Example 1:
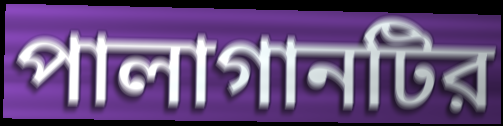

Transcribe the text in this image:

পালাগানটির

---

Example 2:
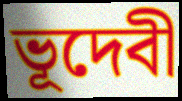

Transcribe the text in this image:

ভূদেবী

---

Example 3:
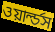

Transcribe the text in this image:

ওয়ার্ল্ডস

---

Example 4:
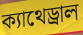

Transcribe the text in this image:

ক্যাথেড্রাল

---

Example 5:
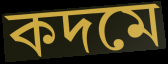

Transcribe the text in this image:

কদমে